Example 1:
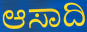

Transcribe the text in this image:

ಆಸಾದಿ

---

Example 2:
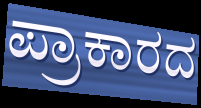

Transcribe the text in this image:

ಪ್ರಾಕಾರದ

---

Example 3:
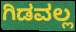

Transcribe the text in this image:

ಗಿಡವಲ್ಲ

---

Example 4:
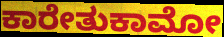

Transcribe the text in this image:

ಕಾರೇತುಕಾಮೋ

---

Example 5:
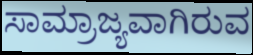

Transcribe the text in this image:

ಸಾಮ್ರಾಜ್ಯವಾಗಿರುವ